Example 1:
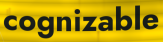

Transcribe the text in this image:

cognizable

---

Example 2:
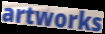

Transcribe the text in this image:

artworks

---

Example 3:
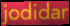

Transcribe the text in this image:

jodidar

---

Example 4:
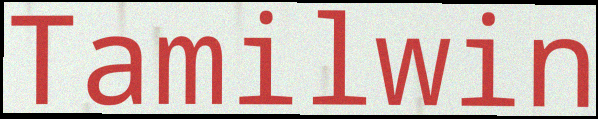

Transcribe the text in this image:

Tamilwin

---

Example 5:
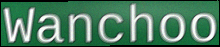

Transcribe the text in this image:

Wanchoo